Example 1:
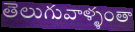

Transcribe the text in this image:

తెలుగువాళ్ళంతా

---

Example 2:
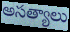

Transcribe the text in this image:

అసత్యాలు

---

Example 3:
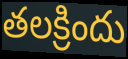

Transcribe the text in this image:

తలక్రిందు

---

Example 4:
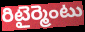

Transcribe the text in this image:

రిటైర్మెంటు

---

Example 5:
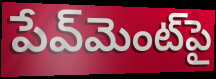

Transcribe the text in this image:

పేవ్‌మెంట్‌పై